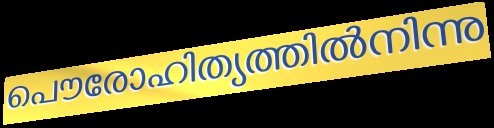
പൌരോഹിത്യത്തിൽനിന്നു